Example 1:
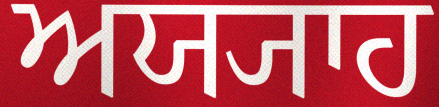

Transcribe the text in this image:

ਅਯ੍ਯਾਹ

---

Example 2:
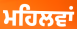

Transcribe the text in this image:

ਮਹਿਲਵਾਂ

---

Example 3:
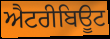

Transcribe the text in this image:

ਐਟਰੀਬਿਊਟ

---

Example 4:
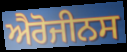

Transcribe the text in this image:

ਐਰੋਜੀਨਸ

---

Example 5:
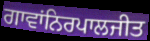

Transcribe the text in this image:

ਗਾਵਾਂਨਿਰਪਾਲਜੀਤ